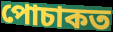
পোচাকত